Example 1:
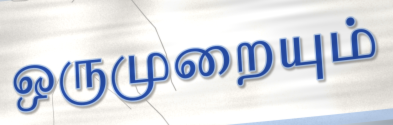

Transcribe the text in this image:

ஒருமுறையும்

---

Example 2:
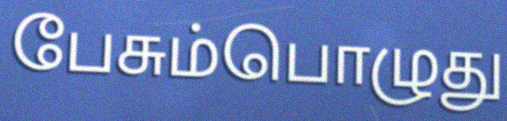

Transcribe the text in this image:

பேசும்பொழுது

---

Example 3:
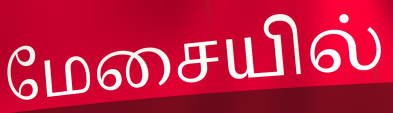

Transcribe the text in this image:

மேசையில்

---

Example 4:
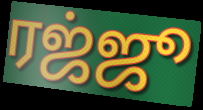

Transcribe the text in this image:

ரஜ்ஜூ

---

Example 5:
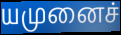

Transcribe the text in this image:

யமுனைச்